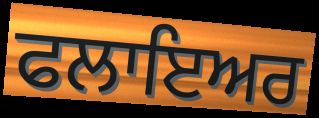
ਫਲਾਇਅਰ